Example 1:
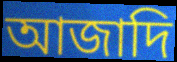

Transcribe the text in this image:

আজাদি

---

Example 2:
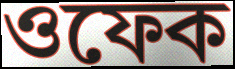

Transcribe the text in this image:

ওফেক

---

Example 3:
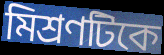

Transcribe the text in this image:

মিশ্রণটিকে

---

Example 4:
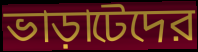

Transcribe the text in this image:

ভাড়াটেদের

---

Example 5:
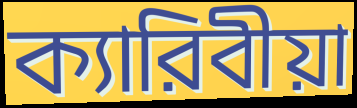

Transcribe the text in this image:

ক্যারিবীয়া